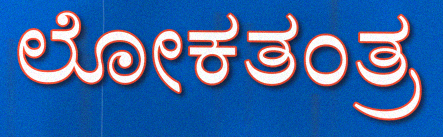
ಲೋಕತಂತ್ರ